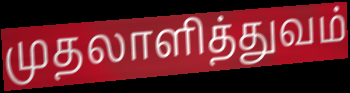
முதலாளித்துவம்